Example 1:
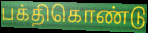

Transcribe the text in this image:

பக்திகொண்டு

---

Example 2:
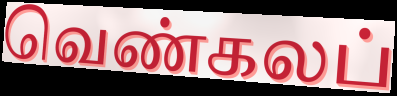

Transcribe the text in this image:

வெண்கலப்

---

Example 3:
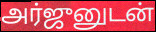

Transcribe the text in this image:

அர்ஜுனுடன்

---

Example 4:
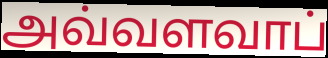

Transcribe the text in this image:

அவ்வளவாப்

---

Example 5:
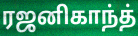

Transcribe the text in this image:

ரஜனிகாந்த்